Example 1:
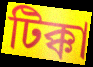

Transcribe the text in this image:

টিক্কা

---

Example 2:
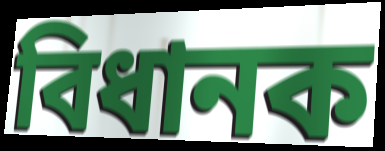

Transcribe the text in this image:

বিধানক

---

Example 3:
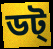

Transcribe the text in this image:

ডট্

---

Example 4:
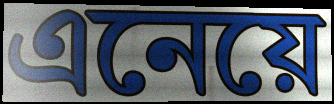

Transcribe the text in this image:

এনেয়ে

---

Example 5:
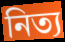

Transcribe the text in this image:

নিত্য